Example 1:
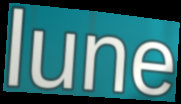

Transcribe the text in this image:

lune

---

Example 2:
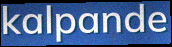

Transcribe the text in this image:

kalpande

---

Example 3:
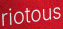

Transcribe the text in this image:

riotous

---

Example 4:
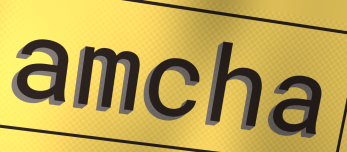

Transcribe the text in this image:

amcha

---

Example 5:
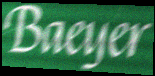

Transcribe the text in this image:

Baeyer